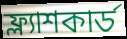
ফ্ল্যাশকার্ড